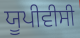
ਯੂਪੀਵੀਸੀ